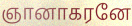
ஞானாகரனே